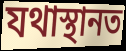
যথাস্থানত